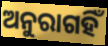
ଅନୁରାଗହିଁ